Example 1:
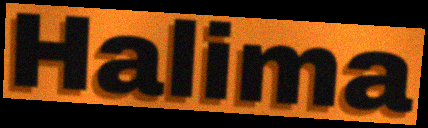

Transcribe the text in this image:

Halima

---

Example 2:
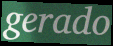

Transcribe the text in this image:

gerado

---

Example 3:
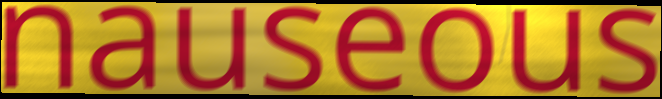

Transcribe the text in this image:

nauseous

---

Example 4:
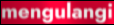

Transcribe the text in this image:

mengulangi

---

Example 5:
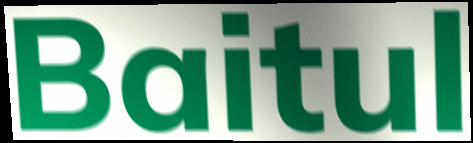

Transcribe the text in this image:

Baitul